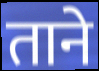
ताने